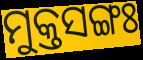
ମୁକ୍ତସଙ୍ଗଃ